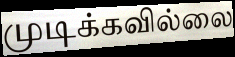
முடிக்கவில்லை